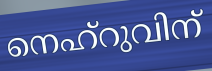
നെഹ്റുവിന്